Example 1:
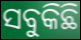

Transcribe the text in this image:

ସବୁକିଛି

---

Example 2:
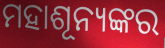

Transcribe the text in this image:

ମହାଶୂନ୍ୟଙ୍କର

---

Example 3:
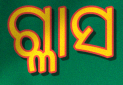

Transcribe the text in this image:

ଗ୍ଳାସ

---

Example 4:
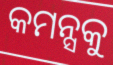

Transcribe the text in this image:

କମନ୍ସକୁ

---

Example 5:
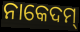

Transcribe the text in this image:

ନାକେଦମ୍